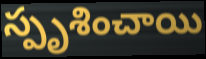
స్పృశించాయి